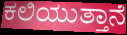
ಕಲಿಯುತ್ತಾನೆ